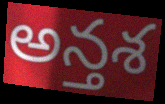
అన్తశ